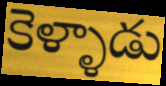
కెళ్ళాడు